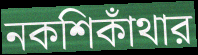
নকশিকাঁথার